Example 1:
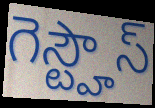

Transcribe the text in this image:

గెస్ట్హౌస్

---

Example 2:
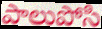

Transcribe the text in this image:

పాలుపోసి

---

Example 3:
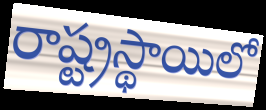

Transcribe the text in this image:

రాష్ట్రస్థాయిలో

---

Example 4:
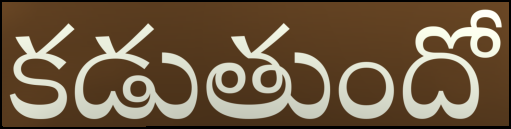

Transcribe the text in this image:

కడుతుందో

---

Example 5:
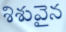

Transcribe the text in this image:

శిశువైన